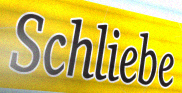
Schliebe